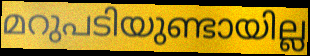
മറുപടിയുണ്ടായില്ല